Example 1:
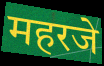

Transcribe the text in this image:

महरजे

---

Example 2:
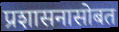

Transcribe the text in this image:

प्रशासनासोबत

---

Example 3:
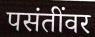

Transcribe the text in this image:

पसंतींवर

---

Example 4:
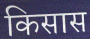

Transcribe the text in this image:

किसास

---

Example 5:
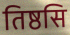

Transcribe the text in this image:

तिष्ठसि